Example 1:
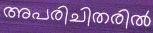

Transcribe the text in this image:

അപരിചിതരിൽ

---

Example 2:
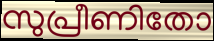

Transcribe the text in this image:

സുപ്രീണിതോ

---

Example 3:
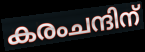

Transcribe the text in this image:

കരംചന്ദിന്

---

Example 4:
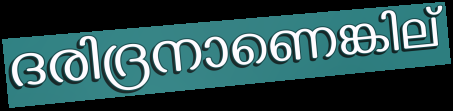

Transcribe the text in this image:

ദരിദ്രനാണെങ്കില്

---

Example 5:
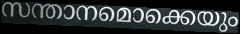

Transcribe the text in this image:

സന്താനമൊക്കെയും